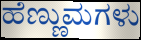
ಹೆಣ್ಣುಮಗಳು